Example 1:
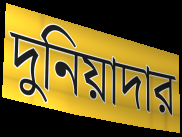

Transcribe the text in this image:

দুনিয়াদার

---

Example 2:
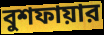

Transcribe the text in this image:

বুশফায়ার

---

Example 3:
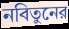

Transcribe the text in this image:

নবিতুনের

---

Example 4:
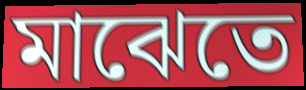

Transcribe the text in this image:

মাঝেতে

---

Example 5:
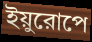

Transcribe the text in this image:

ইয়ুরোপে